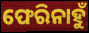
ଫେରିନାହୁଁ